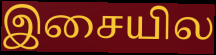
இசையில